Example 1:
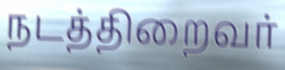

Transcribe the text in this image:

நடத்திறைவர்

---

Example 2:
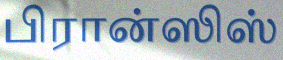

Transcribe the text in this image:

பிரான்ஸிஸ்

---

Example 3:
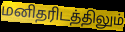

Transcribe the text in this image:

மனிதரிடத்திலும்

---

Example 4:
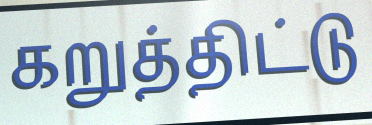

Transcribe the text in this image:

கறுத்திட்டு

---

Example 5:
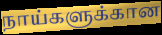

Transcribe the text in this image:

நாய்களுக்கான